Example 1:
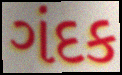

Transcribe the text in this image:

ગંદક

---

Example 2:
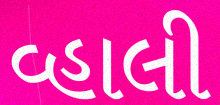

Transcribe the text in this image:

વ્હાલી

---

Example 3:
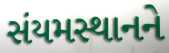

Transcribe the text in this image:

સંયમસ્થાનને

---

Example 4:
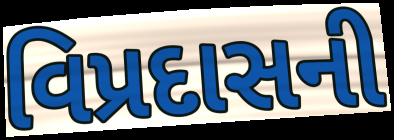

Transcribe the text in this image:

વિપ્રદાસની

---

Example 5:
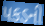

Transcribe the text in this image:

પકડની